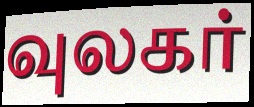
வுலகர்